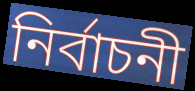
নিৰ্বাচনী